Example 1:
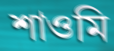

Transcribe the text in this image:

শাওমি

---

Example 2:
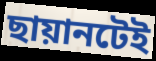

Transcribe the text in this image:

ছায়ানটেই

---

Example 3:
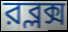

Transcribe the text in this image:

রব্লক্স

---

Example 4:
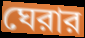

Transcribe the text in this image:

ঘেরার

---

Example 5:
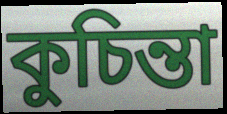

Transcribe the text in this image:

কুচিন্তা